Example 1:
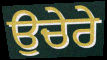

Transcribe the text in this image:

ਉਚੇਰੇ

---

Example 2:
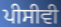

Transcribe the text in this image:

ਪੀਸੀਵੀ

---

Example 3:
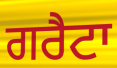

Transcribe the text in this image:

ਗਰੈਟਾ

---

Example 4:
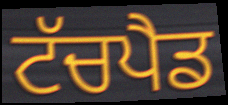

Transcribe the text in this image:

ਟੱਚਪੈਡ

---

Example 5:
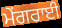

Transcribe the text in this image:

ਮੇਂਗਰਾਈ